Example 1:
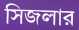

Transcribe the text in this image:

সিজলার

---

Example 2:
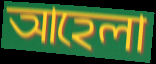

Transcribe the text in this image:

আহেলা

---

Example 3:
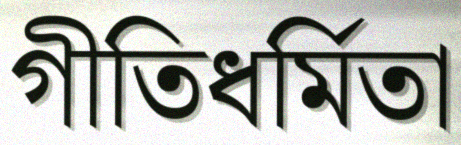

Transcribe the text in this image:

গীতিধর্মিতা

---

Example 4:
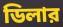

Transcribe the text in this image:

ডিলার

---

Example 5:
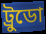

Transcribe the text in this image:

ট্রুডো